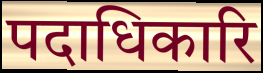
पदाधिकारि